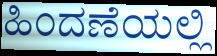
ಹಿಂದಣೆಯಲ್ಲಿ